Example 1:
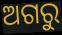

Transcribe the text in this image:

ଅଗରୁ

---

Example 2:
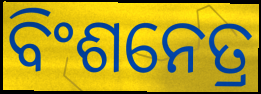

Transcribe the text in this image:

ବିଂଶନେତ୍ର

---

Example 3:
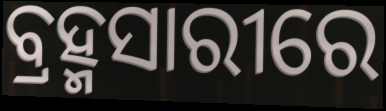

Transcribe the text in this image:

ବ୍ରହ୍ମସାରୀରେ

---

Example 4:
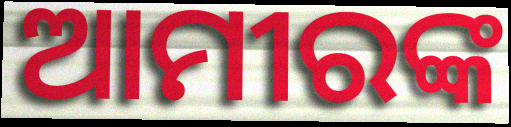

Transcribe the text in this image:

ଆମୀରଙ୍କ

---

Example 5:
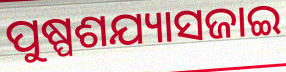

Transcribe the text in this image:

ପୁଷ୍ପଶଯ୍ୟାସଜାଇ